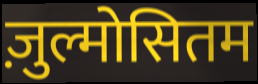
ज़ुल्मोसितम